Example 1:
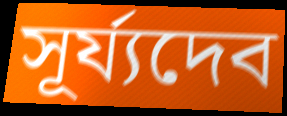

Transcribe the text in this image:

সূর্য্যদেব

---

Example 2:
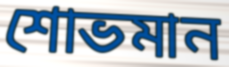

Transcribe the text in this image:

শোভমান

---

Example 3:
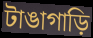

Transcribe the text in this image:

টাঙাগাড়ি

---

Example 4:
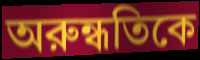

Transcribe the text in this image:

অরুন্ধতিকে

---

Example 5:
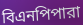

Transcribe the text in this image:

বিএনপিপারা